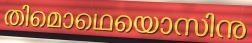
തിമൊഥെയൊസിനു